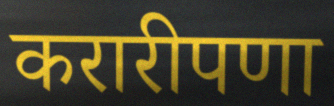
करारीपणा